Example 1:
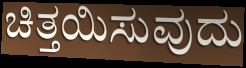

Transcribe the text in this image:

ಚಿತ್ತಯಿಸುವುದು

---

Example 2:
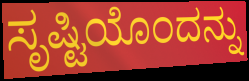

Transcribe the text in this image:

ಸೃಷ್ಟಿಯೊಂದನ್ನು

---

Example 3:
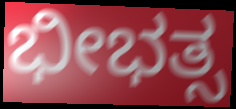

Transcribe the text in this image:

ಭೀಭತ್ಸ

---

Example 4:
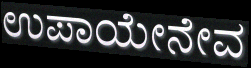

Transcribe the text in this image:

ಉಪಾಯೇನೇವ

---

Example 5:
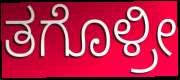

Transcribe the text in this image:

ತಗೊಳ್ರೀ